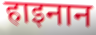
हाइनान